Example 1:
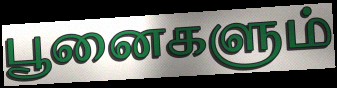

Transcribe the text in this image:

பூனைகளும்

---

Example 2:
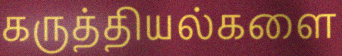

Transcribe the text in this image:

கருத்தியல்களை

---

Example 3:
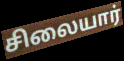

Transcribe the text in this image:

சிலையார்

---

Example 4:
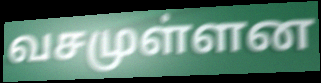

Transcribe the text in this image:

வசமுள்ளன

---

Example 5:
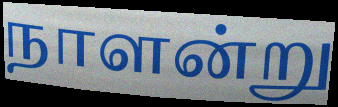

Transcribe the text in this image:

நாளன்று